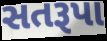
સતરૂપા